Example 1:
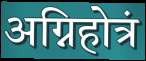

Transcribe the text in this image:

अग्निहोत्रं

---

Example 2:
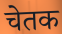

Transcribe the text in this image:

चेतक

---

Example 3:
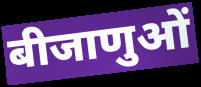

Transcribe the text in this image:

बीजाणुओं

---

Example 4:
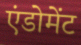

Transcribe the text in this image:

एंडोमेंट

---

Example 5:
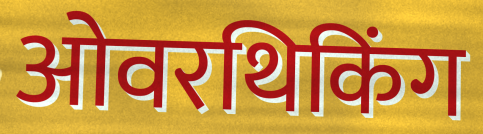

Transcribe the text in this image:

ओवरथिकिंग